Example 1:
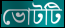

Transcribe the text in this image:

ভোটটি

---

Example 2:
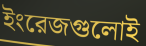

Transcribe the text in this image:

ইংরেজগুলোই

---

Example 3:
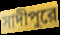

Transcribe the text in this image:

সাদীপুরে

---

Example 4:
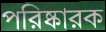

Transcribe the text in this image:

পরিষ্কারক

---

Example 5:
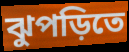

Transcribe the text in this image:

ঝুপড়িতে